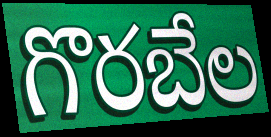
గొరబేల